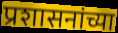
प्रशासनांच्या